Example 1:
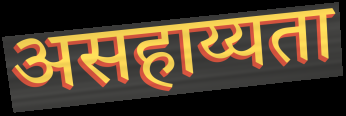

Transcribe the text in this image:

असहाय्यता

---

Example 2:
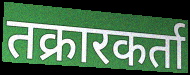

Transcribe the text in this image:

तक्रारकर्ता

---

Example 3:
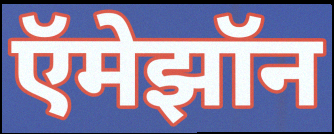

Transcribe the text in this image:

ऍमेझॉन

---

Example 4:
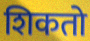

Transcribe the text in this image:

शिकतो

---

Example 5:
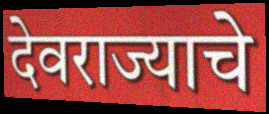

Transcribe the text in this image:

देवराज्याचे